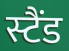
स्‍टैंड